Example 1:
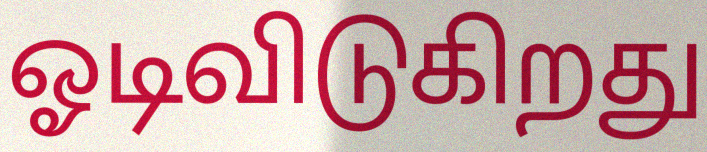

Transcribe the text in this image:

ஓடிவிடுகிறது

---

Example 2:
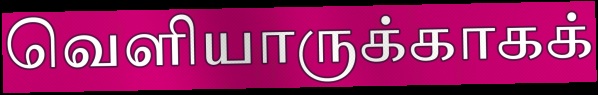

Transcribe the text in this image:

வெளியாருக்காகக்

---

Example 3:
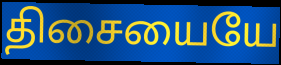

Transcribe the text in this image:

திசையையே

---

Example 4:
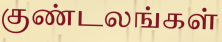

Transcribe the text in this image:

குண்டலங்கள்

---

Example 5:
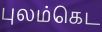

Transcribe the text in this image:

புலம்கெட